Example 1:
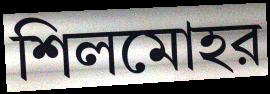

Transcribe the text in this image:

শিলমোহর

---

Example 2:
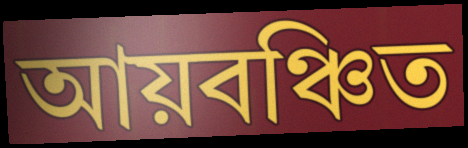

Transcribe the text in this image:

আয়বঞ্চিত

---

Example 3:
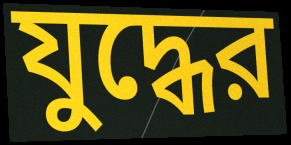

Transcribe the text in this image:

যুদ্ধের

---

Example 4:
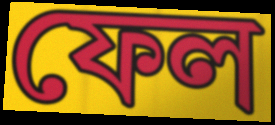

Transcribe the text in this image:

ফেল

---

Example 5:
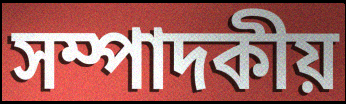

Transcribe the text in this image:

সম্পাদকীয়